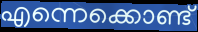
എന്നെക്കൊണ്ട്